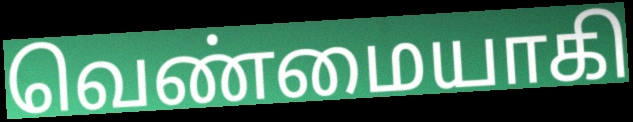
வெண்மையாகி